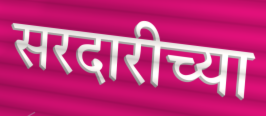
सरदारीच्या